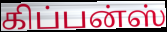
கிப்பன்ஸ்